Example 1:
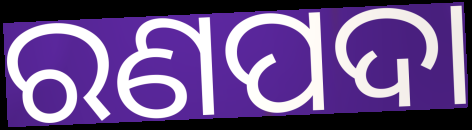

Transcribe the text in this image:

ରଣପଦା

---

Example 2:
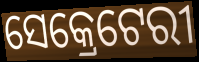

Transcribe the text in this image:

ସେକ୍ରେଟେରୀ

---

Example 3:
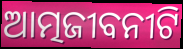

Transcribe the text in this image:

ଆତ୍ମଜୀବନୀଟି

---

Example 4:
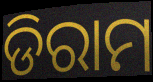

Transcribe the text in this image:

ଡିରାମ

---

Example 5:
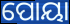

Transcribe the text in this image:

ପୋୟା